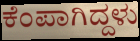
ಕೆಂಪಾಗಿದ್ದಳು